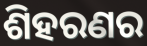
ଶିହରଣର